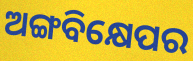
ଅଙ୍ଗବିକ୍ଷେପର